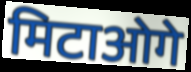
मिटाओगे